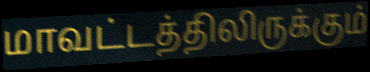
மாவட்டத்திலிருக்கும்